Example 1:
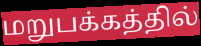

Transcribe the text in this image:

மறுபக்கத்தில்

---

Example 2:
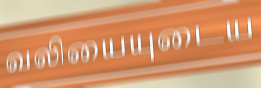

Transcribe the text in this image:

வலியையுடைய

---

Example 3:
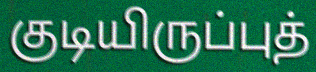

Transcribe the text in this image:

குடியிருப்புத்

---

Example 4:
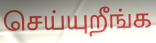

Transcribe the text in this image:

செய்யுறீங்க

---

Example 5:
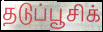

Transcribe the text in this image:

தடுப்பூசிக்